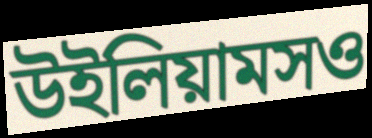
উইলিয়ামসও